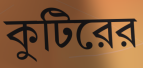
কুটিরের